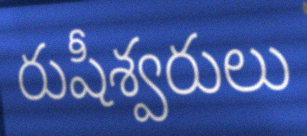
రుషీశ్వరులు